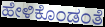
ಹೇಳಿಕೊಂಡಂತೆ